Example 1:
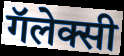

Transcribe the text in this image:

गॅलेक्सी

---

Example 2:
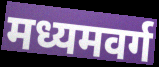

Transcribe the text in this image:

मध्यमवर्ग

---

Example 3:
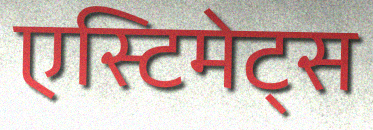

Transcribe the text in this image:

एस्टिमेट्स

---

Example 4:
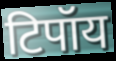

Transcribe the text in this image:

टिपॉय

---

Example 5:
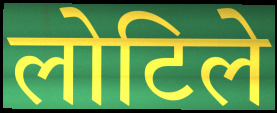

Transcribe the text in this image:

लोटिले